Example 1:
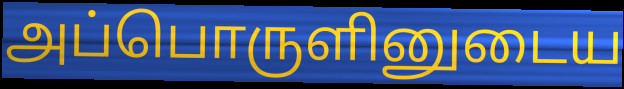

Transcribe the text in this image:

அப்பொருளினுடைய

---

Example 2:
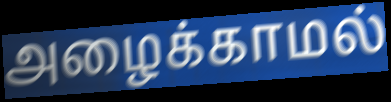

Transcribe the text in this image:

அழைக்காமல்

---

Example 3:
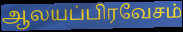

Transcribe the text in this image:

ஆலயப்பிரவேசம்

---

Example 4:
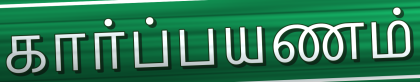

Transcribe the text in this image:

கார்ப்பயணம்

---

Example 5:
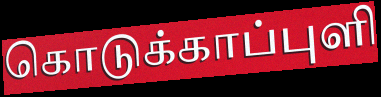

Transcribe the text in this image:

கொடுக்காப்புளி